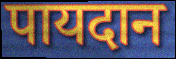
पायदान